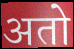
अतो